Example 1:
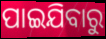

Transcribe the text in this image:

ପାଇଯିବାରୁ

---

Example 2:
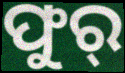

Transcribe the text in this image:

ଫୁର୍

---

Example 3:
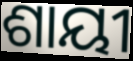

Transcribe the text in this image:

ଶାୟୀ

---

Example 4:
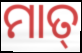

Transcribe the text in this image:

ମାତ୍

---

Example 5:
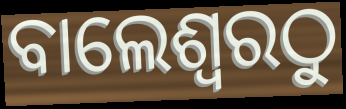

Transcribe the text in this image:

ବାଲେଶ୍ୱରଠୁ